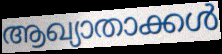
ആഖ്യാതാക്കൾ